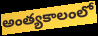
అంత్యకాలంలో